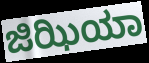
ಜಿಝಿಯಾ